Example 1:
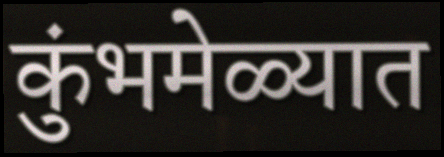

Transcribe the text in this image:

कुंभमेळ्यात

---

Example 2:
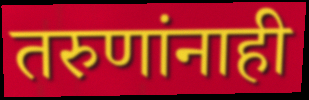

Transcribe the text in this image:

तरुणांनाही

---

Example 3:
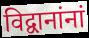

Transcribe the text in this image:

विद्वानांनां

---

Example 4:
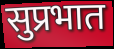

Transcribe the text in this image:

सुप्रभात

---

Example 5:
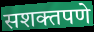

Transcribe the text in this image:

सशक्तपणे